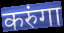
करुंगा